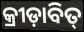
କ୍ରୀଡ଼ାବିତ୍